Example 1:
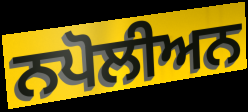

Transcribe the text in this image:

ਨਪੋਲੀਅਨ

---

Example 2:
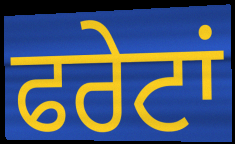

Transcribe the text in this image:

ਫਰੇਟਾਂ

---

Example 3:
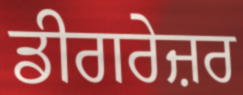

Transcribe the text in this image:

ਡੀਗਰੇਜ਼ਰ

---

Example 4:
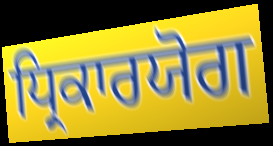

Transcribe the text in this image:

ਧ੍ਰਿਕਾਰਯੋਗ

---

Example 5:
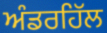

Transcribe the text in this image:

ਅੰਡਰਹਿੱਲ